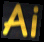
Ai